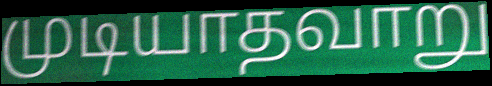
முடியாதவாறு